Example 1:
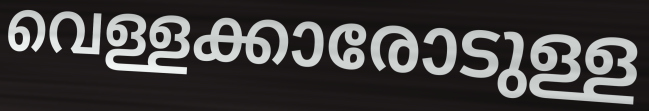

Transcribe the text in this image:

വെള്ളക്കാരോടുള്ള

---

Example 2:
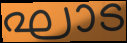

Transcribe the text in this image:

ഘാട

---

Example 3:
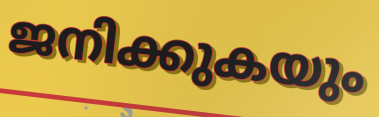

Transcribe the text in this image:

ജനിക്കുകയും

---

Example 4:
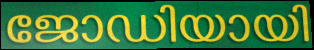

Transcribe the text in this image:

ജോഡിയായി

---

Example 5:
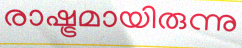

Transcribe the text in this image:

രാഷ്ട്രമായിരുന്നു